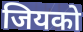
जियको